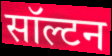
सॉल्टन